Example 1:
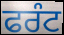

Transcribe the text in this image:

ਫਰੰਟ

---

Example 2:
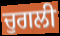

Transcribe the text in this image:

ਚੁਗਲੀ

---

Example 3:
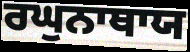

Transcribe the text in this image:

ਰਘੁਨਾਥਾਯ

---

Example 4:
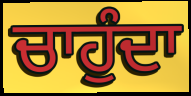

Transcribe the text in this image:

ਚਾਹੁੰਦਾ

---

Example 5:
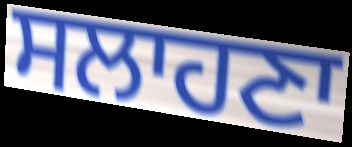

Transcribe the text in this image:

ਸਲਾਹਣਾ